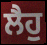
ਲੈਹੁ